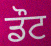
ਡੌਟ